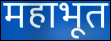
महाभूत